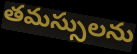
తమస్సులను